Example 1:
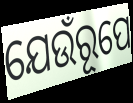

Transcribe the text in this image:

ଯେଉଁରୂପେ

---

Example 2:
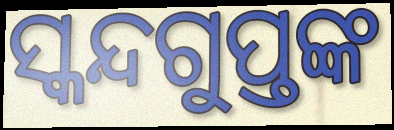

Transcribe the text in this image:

ସ୍କନ୍ଦଗୁପ୍ତଙ୍କ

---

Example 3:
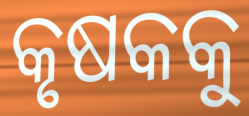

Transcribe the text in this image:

କୃଷକକୁ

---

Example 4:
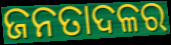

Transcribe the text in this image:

ଜନତାଦଳର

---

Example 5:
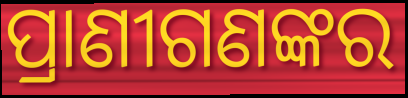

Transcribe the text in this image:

ପ୍ରାଣୀଗଣଙ୍କର